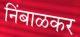
निंबाळकर